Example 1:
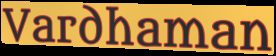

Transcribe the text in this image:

Vardhaman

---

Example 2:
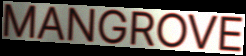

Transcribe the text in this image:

MANGROVE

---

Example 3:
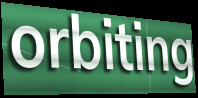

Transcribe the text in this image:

orbiting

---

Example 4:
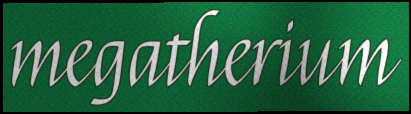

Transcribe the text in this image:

megatherium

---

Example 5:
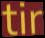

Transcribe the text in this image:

tir